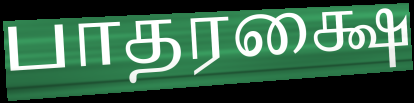
பாதரக்ஷை